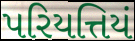
પરિયત્તિયં